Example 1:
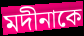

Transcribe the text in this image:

মদীনাকে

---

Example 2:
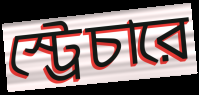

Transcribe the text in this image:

স্ট্রেচারে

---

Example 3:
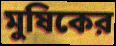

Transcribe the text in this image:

মুষিকের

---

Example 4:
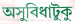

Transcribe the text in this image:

অসুবিধাটুকু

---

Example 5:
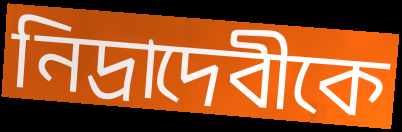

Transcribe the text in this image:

নিদ্রাদেবীকে